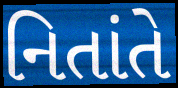
નિતાંતે